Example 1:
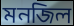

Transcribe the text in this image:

মনজিল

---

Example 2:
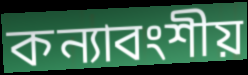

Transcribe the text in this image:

কন্যাবংশীয়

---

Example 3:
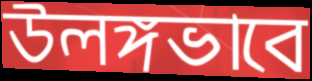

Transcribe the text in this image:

উলঙ্গভাবে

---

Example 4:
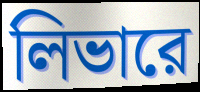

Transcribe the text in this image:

লিভারে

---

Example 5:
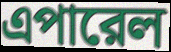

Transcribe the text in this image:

এপারেল